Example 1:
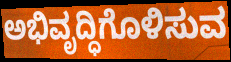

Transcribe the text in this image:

ಅಭಿವೃದ್ಧಿಗೊಳಿಸುವ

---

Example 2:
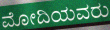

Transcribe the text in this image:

ಮೋದಿಯವರು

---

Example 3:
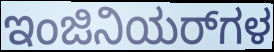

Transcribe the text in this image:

ಇಂಜಿನಿಯರ್‌ಗಳ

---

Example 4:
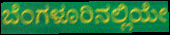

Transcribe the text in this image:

ಬೆಂಗಳೂರಿನಲ್ಲಿಯೇ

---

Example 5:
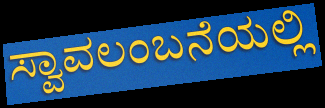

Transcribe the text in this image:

ಸ್ವಾವಲಂಬನೆಯಲ್ಲಿ